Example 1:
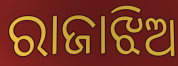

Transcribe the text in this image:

ରାଜାଝିଅ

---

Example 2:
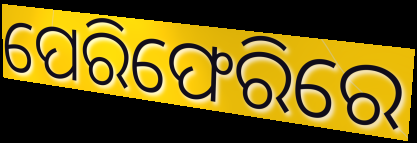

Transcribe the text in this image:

ପେରିଫେରିରେ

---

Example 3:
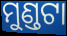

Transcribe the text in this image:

ମୁଣ୍ଡଟା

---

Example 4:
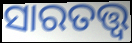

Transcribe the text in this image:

ସାରତତ୍ତ୍ଵ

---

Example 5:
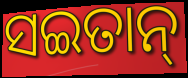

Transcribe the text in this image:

ସଇତାନ୍